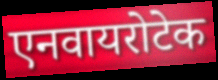
एनवायरोटेक